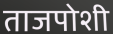
ताजपोशी